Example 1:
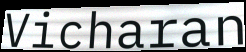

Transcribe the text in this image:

Vicharan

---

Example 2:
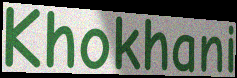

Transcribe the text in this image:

Khokhani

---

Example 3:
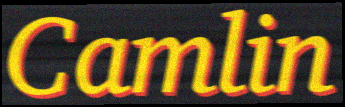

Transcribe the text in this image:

Camlin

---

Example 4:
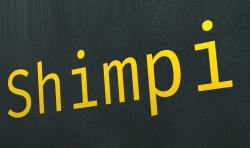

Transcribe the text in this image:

Shimpi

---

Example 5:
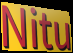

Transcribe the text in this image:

Nitu